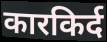
कारकिर्द